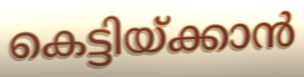
കെട്ടിയ്ക്കാൻ